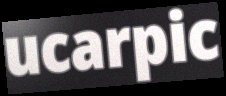
ucarpic